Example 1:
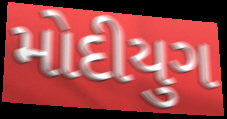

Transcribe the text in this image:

મોદીયુગ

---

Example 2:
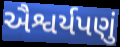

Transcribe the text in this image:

ઐશ્વર્યપણું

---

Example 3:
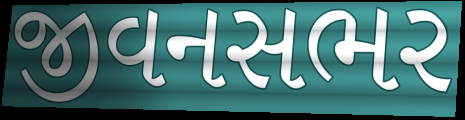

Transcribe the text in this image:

જીવનસભર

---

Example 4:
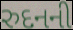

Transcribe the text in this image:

રુદનની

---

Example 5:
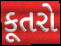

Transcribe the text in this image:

કૂતરો